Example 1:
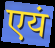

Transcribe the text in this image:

एयं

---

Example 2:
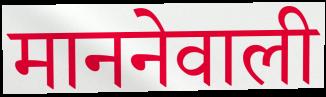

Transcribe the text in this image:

माननेवाली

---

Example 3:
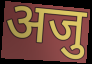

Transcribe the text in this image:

अजु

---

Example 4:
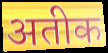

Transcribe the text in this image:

अतीक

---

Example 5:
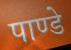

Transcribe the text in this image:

पाण्डे